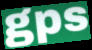
gps